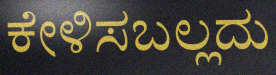
ಕೇಳಿಸಬಲ್ಲದು